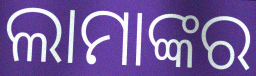
ଲାମାଙ୍କର